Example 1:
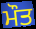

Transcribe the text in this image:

ਮੌਤ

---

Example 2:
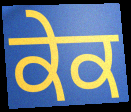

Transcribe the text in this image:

ਕੇਕ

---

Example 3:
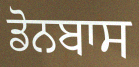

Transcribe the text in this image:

ਡੋਨਬਾਸ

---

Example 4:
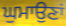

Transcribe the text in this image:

ਘੁਮਾਉਣਾਂ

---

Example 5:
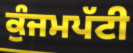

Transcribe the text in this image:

ਕੁੰਜਮਪੱਟੀ